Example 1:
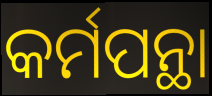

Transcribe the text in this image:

କର୍ମପନ୍ଥା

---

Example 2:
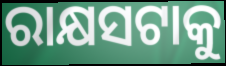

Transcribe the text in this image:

ରାକ୍ଷସଟାକୁ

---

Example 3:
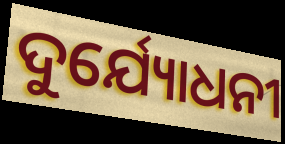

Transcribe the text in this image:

ଦୁର୍ଯ୍ୟୋଧନୀ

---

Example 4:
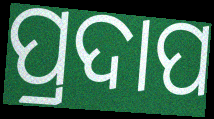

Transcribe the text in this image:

ପ୍ରଦାପ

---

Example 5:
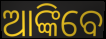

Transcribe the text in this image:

ଆଙ୍କିବେ